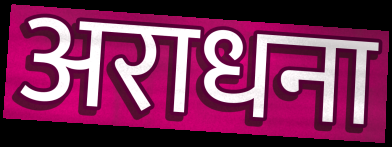
अराधना